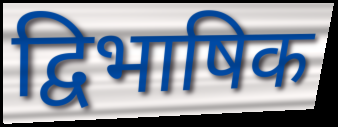
द्विभाषिक